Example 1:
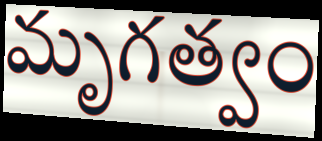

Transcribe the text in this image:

మృగత్వం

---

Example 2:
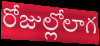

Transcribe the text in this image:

రోజుల్లోలాగ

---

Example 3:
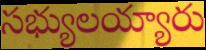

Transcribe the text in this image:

సభ్యులయ్యారు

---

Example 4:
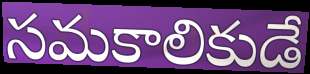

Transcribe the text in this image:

సమకాలికుడే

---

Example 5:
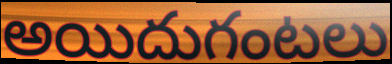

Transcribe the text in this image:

అయిదుగంటలు